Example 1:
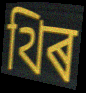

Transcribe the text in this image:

থিৰ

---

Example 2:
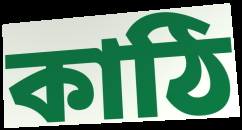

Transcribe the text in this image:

কাঠি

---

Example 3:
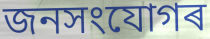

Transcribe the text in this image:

জনসংযোগৰ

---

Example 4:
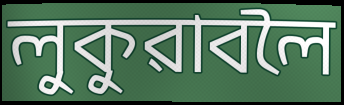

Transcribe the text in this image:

লুকুৱাবলৈ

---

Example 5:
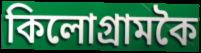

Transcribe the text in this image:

কিলোগ্ৰামকৈ